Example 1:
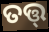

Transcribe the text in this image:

ତତ୍ତ୍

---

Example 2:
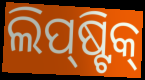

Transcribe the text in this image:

ଲିପ୍‌ଷ୍ଟିକ୍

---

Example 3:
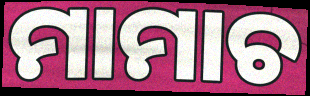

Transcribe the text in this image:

ମାମାଚ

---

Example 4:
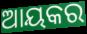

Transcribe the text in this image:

ଆୟକର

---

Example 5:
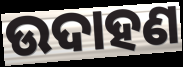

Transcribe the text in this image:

ଉଦାହଣ